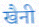
खैनी